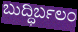
ಬುದ್ಧಿರ್ಬಲಂ